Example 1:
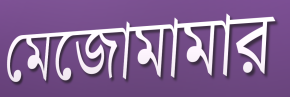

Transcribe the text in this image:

মেজোমামার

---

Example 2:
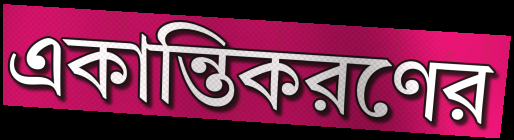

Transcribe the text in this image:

একান্তিকরণের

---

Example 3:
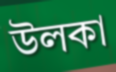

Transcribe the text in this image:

উলকা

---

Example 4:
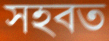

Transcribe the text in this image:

সহবত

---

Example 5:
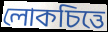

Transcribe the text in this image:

লোকচিত্তে